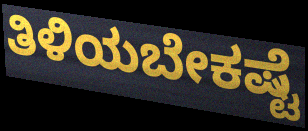
ತಿಳಿಯಬೇಕಷ್ಟೆ